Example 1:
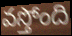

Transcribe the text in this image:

వస్తోంది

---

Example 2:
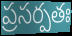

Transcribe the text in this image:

ప్రసర్పతః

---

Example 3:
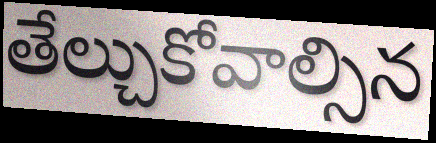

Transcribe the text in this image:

తేల్చుకోవాల్సిన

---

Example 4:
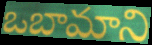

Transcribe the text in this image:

ఒబామాని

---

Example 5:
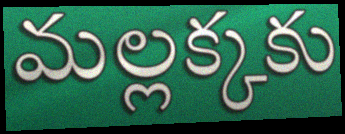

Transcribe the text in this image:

మల్లక్కకు